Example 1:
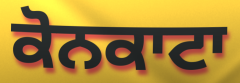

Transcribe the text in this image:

ਕੋਨਕਾਟਾ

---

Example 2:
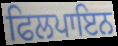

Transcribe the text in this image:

ਫਿਲਪਾਇਨ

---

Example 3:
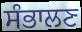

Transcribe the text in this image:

ਸੰਭਾਲਣ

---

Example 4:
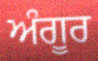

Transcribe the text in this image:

ਅੰਗੂਰ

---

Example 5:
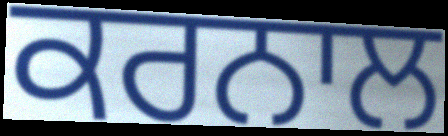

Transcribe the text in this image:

ਕਰਨਾਲ